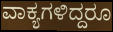
ವಾಕ್ಯಗಳಿದ್ದರೂ